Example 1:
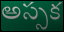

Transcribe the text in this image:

అస్సక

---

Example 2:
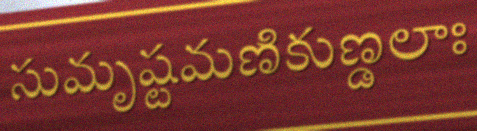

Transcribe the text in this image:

సుమృష్టమణికుణ్డలాః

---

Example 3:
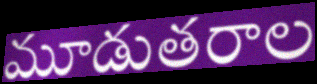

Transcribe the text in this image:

మూడుతరాల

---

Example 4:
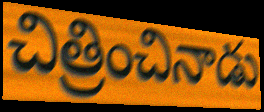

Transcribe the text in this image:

చిత్రించినాడు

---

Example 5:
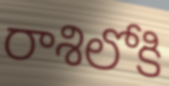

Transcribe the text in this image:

రాశిలోకి